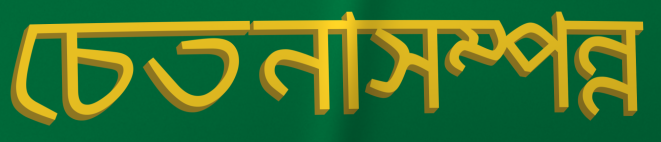
চেতনাসম্পন্ন